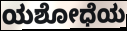
ಯಶೋಧೆಯ